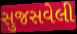
સુજસવેલી